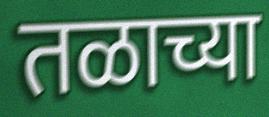
तळाच्या